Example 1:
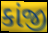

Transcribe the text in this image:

કાંજી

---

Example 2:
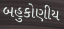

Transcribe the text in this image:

બહુકોણીય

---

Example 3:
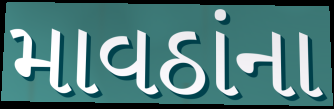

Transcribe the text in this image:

માવઠાંના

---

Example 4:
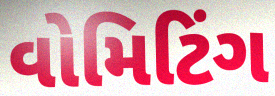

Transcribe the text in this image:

વોમિટિંગ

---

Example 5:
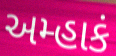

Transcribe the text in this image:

અમ્હાકં